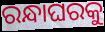
ରନ୍ଧାଘରକୁ